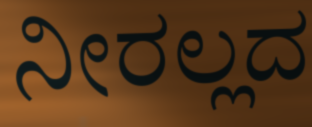
ನೀರಲ್ಲದ